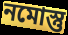
নমোস্তু